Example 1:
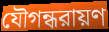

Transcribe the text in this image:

যৌগন্ধরায়ণ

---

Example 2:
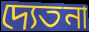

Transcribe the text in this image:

দ্যেতনা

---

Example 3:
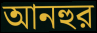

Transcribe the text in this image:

আনহুর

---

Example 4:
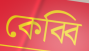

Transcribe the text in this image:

কেব্বি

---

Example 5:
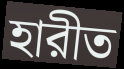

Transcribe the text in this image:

হারীত